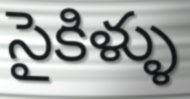
సైకిళ్ళు